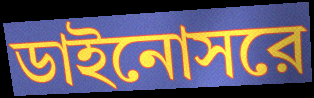
ডাইনোসরে